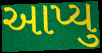
આપ્યુ